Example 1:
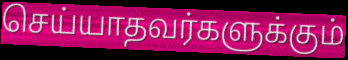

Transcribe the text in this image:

செய்யாதவர்களுக்கும்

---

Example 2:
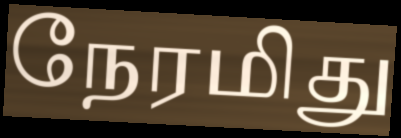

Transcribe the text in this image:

நேரமிது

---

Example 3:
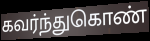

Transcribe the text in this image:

கவர்ந்துகொண்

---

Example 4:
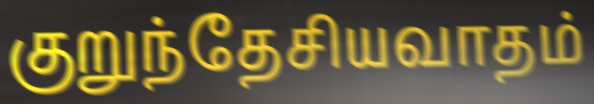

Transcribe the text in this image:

குறுந்தேசியவாதம்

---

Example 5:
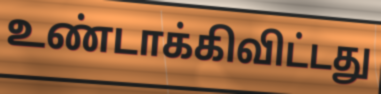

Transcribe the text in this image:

உண்டாக்கிவிட்டது